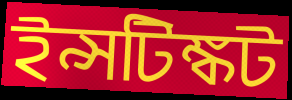
ইন্সটিঙ্কট